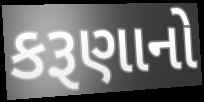
કરૂણાનો